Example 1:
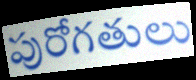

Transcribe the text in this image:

పురోగతులు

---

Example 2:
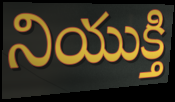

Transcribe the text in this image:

నియుక్తి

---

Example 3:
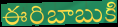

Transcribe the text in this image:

ఈరిబాబుకి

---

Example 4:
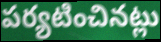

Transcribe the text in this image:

పర్యటించినట్లు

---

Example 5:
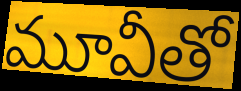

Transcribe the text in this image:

మూవీతో